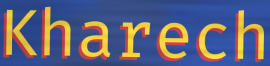
Kharech